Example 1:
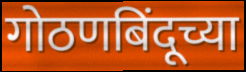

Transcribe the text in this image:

गोठणबिंदूच्या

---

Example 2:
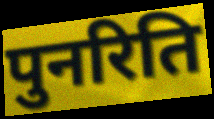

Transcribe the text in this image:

पुनरिति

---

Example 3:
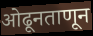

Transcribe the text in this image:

ओढूनताणून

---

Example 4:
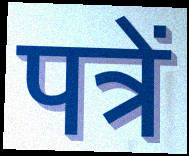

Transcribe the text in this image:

पत्रें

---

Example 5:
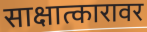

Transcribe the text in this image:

साक्षात्कारावर